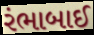
રંભાબાઈ